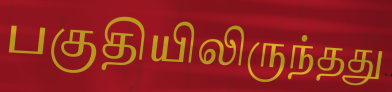
பகுதியிலிருந்தது